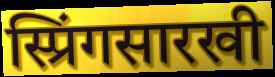
स्प्रिंगसारखी